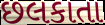
છલકાતા